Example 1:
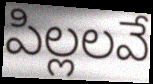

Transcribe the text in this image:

పిల్లలవే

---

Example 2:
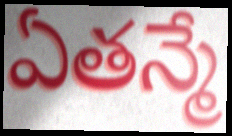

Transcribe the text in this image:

ఏతన్మే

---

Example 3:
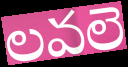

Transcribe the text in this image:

లవలె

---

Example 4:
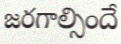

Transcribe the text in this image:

జరగాల్సిందే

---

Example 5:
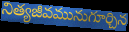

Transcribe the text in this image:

నిత్యజీవమునుగూర్చిన